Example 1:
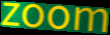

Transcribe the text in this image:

zoom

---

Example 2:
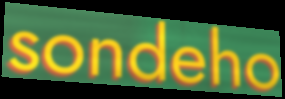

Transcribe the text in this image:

sondeho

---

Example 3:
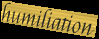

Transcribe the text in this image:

humiliation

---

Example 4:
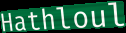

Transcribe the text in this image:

Hathloul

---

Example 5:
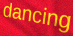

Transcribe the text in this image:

dancing